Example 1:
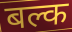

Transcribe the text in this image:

बल्क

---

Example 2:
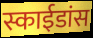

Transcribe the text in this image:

स्काईडांस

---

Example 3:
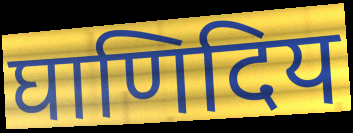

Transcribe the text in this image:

घाणिदिय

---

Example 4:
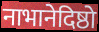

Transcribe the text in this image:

नाभानेदिष्ठो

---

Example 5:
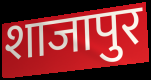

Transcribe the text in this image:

शाजापुर